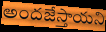
అందజేస్తాయని